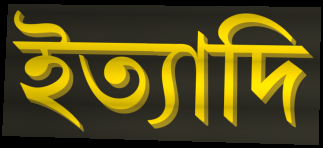
ইত্য়াদি